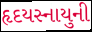
હૃદયસ્નાયુની